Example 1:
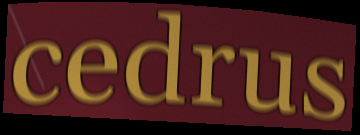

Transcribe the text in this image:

cedrus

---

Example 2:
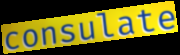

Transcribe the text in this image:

consulate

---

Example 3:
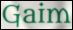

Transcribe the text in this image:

Gaim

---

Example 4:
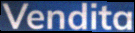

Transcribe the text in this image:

Vendita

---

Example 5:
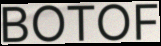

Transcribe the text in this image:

BOTOF